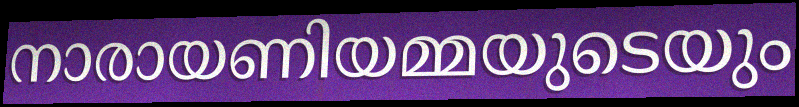
നാരായണിയമ്മയുടെയും